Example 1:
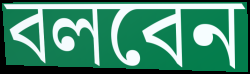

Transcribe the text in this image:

বলবেন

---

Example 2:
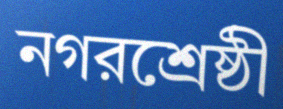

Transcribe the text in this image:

নগরশ্রেষ্ঠী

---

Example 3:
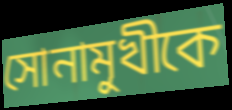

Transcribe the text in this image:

সোনামুখীকে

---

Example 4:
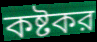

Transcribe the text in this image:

কষ্টকর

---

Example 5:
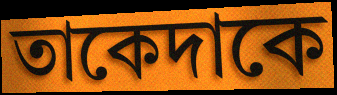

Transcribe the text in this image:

তাকেদাকে